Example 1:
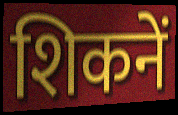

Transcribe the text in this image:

शिकनें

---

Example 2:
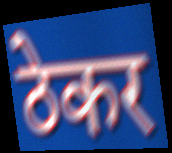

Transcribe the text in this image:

ठेकर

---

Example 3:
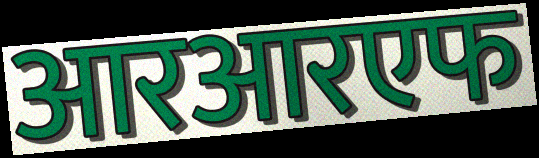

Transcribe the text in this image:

आरआरएफ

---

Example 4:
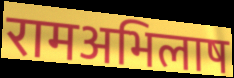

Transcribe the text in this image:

रामअभिलाष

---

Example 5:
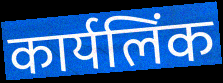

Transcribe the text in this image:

कार्यलिंक